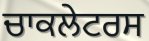
ਚਾਕਲੇਟਰਸ